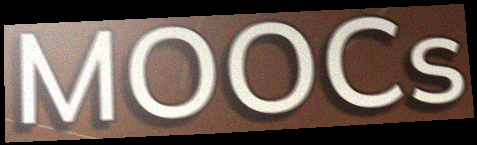
MOOCs